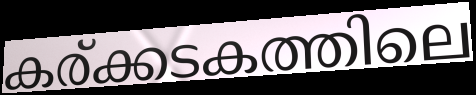
കര്ക്കടകത്തിലെ